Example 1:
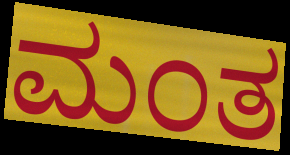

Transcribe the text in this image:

ಮಂತ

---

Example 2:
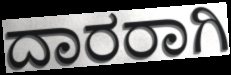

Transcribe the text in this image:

ದಾರರಾಗಿ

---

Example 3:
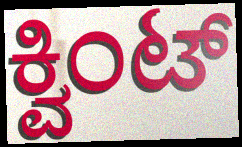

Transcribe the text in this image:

ಕ್ವಿಂಟ್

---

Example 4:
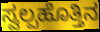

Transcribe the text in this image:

ಸ್ವಲ್ಪಹೊತ್ತಿನ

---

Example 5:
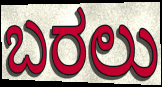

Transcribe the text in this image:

ಬರಲು